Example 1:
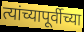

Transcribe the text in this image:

त्यांच्यापूर्वीच्या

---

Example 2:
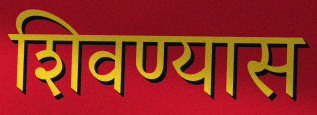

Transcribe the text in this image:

शिवण्यास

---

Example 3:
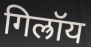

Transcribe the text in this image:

गिल्रॉय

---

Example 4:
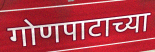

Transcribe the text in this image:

गोणपाटाच्या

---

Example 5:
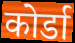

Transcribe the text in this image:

कोर्डा